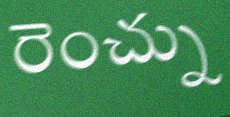
రెంచ్ను